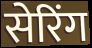
सेरिंग